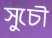
সুচৌ